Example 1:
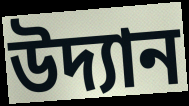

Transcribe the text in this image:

উদ্যান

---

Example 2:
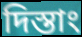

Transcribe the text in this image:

দিস্তাং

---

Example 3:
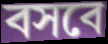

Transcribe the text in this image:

বসবে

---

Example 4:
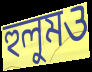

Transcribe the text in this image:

হুলুমও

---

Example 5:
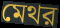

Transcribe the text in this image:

মেথর